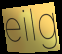
eilg